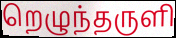
றெழுந்தருளி